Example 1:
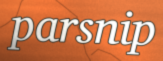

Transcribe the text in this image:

parsnip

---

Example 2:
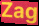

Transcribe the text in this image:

Zag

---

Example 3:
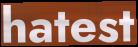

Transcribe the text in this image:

hatest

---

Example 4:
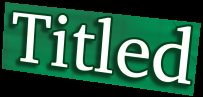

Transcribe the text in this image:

Titled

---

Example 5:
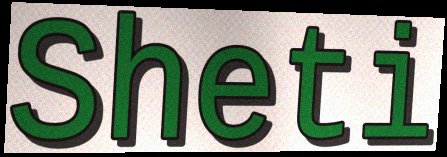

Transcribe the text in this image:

Sheti